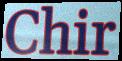
Chir